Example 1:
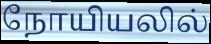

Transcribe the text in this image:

நோயியலில்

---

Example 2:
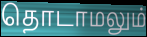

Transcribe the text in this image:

தொடாமலும்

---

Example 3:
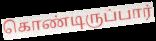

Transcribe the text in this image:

கொண்டிருப்பார்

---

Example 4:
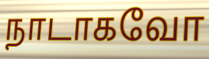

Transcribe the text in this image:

நாடாகவோ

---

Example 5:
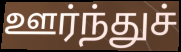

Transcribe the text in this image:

ஊர்ந்துச்